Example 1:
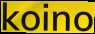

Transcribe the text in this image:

koino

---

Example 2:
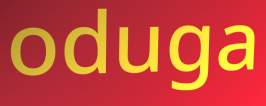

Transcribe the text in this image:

oduga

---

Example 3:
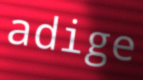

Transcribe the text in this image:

adige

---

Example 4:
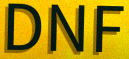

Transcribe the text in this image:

DNF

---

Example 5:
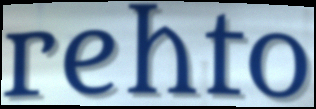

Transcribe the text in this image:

rehto